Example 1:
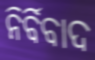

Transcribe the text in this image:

ନିର୍ବିବାଦ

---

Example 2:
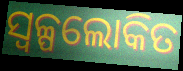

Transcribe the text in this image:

ସ୍ୱଳ୍ପଲୋକିତ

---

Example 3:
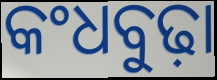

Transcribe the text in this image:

କଂଧବୁଢ଼ା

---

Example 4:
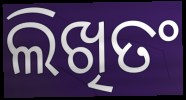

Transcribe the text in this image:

ଲିଖିତଂ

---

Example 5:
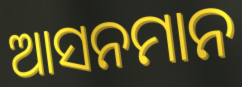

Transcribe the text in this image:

ଆସନମାନ